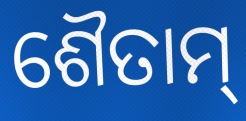
ଶୈତାମ୍